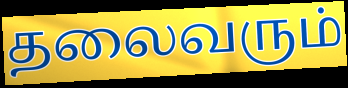
தலைவரும்